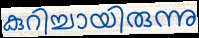
കുറിച്ചായിരുന്നു